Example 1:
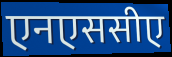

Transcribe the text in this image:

एनएससीए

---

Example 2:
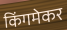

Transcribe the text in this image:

किंगमेकर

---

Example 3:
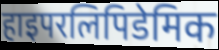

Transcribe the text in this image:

हाइपरलिपिडेमिक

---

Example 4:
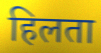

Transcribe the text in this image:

हिलता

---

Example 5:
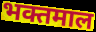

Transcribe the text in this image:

भक्तमाल